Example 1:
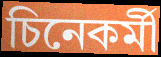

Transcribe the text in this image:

চিনেকৰ্মী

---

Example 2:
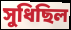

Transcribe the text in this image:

সুধিছিল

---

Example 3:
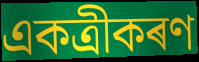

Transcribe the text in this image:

একত্ৰীকৰণ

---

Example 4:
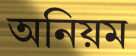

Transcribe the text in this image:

অনিয়ম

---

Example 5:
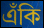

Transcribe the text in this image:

এঁকি